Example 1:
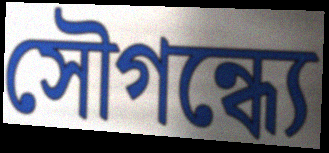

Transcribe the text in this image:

সৌগন্ধ্যে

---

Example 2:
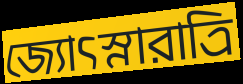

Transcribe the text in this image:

জ্যোৎস্নারাত্রি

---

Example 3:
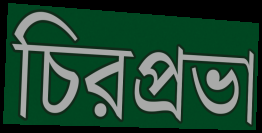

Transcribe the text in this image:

চিরপ্রভা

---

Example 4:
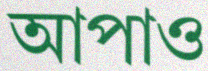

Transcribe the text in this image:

আপাও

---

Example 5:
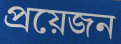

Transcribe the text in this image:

প্রয়েজন